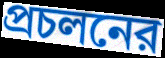
প্রচলনের